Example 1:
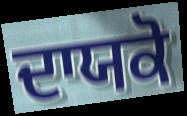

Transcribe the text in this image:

ਦਾਯਕੋ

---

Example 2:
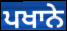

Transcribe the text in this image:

ਪਖਾਨੇ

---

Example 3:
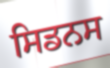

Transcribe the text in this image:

ਸਿਡਨਸ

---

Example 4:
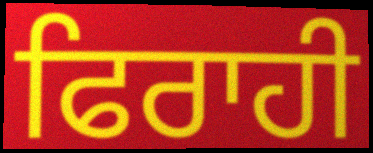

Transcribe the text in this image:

ਫਿਰਾਹੀ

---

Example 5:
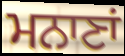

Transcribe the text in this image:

ਮਨਾਣਾਂ